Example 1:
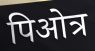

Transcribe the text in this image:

पिओत्र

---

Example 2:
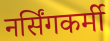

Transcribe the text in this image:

नर्सिंगकर्मी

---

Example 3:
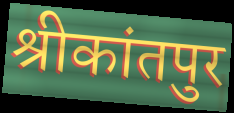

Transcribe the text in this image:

श्रीकांतपुर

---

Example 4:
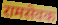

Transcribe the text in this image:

रामसेवक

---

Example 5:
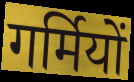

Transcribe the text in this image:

गर्मियों